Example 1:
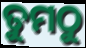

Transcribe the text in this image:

ତୁମଠୁ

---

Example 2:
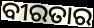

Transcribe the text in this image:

ବୀରତାର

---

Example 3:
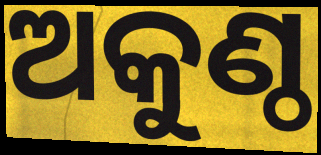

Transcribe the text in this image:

ଅକୁଣ୍ଠ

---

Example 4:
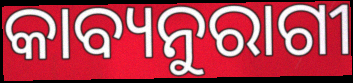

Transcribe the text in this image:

କାବ୍ୟନୁରାଗୀ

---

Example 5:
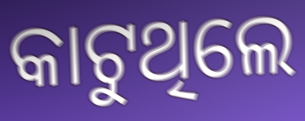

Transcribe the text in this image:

କାଟୁଥିଲେ